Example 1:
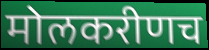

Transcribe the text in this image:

मोलकरीणच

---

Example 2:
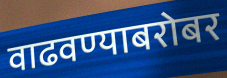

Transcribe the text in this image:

वाढवण्याबरोबर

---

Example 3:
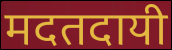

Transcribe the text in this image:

मदतदायी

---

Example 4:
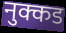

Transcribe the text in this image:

नुक्कड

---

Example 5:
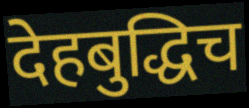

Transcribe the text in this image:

देहबुद्धिच